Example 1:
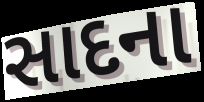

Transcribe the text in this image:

સાદના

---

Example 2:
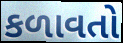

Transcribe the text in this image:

કળાવતો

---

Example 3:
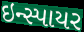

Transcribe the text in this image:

ઇન્સ્પાયર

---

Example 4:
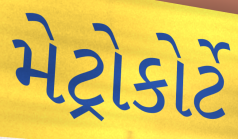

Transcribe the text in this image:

મેટ્રોકોર્ટે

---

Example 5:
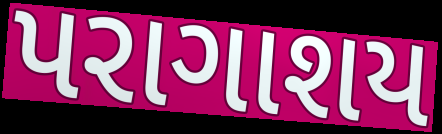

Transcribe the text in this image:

પરાગાશય